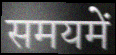
समयमें